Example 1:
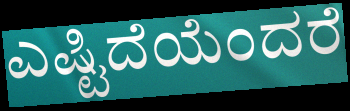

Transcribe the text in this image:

ಎಷ್ಟಿದೆಯೆಂದರೆ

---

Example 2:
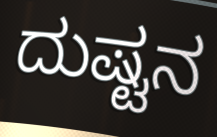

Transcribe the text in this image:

ದುಷ್ಟನ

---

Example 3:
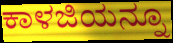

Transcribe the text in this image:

ಕಾಳಜಿಯನ್ನೂ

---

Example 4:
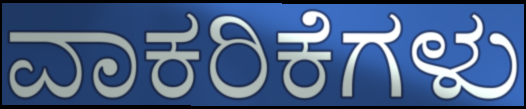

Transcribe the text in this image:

ವಾಕರಿಕೆಗಳು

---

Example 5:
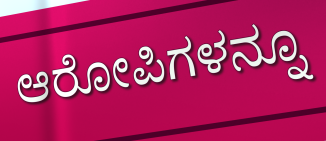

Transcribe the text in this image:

ಆರೋಪಿಗಳನ್ನೂ